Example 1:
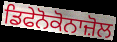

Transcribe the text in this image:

ਡਿਫੇਨੋਕੋਨਾਜ਼ੋਲ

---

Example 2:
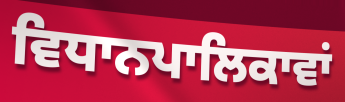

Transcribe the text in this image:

ਵਿਧਾਨਪਾਲਿਕਾਵਾਂ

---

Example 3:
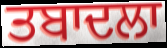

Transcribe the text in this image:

ਤਬਾਦਲਾ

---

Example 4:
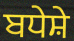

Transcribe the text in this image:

ਬਧੇਸ਼ੇ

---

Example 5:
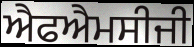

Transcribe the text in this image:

ਐਫਐਮਸੀਜੀ